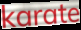
karate